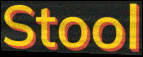
Stool